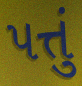
પત્તું